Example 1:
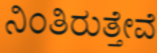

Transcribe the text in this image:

ನಿಂತಿರುತ್ತೇವೆ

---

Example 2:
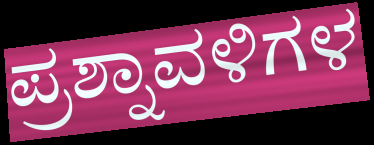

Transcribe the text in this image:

ಪ್ರಶ್ನಾವಳಿಗಳ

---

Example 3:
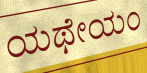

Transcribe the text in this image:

ಯಥೇಯಂ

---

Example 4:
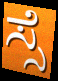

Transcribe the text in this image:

ಸ್ಸೆ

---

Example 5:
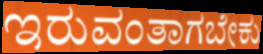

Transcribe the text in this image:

ಇರುವಂತಾಗಬೇಕು